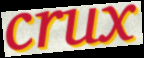
crux